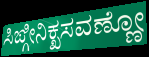
ಸಿಙ್ಗೀನಿಕ್ಖಸವಣ್ಣೋ